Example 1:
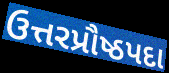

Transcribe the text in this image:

ઉત્તરપ્રૌષ્ઠપદા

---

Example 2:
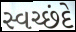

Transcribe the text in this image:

સ્વચ્છંદે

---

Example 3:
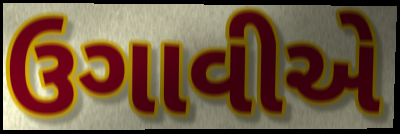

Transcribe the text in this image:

ઉગાવીએ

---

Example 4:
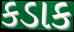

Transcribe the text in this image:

કડાક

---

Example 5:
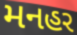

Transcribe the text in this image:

મનહર